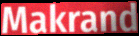
Makrand